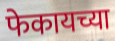
फेकायच्या